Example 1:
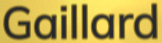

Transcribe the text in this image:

Gaillard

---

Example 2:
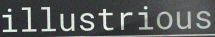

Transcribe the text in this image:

illustrious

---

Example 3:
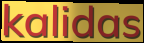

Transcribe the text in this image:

kalidas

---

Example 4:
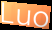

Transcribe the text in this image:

Luo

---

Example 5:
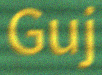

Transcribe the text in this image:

Guj